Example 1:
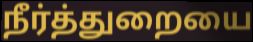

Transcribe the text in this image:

நீர்த்துறையை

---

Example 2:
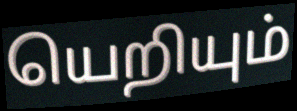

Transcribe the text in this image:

யெறியும்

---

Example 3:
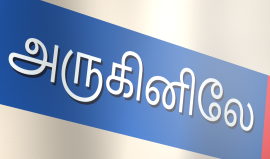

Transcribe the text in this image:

அருகினிலே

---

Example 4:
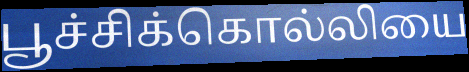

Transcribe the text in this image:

பூச்சிக்கொல்லியை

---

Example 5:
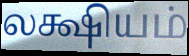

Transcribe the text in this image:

லக்ஷியம்